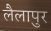
लैलापुर